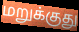
மறுக்குது